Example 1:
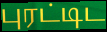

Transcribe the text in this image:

புரட்டிட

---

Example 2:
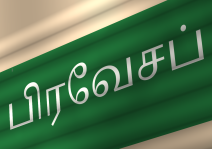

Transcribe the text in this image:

பிரவேசப்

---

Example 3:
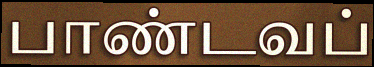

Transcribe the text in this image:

பாண்டவப்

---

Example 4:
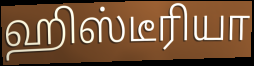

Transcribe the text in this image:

ஹிஸ்டீரியா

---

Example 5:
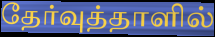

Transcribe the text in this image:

தேர்வுத்தாளில்